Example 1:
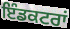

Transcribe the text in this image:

ਇੰਡਕਟਰਾਂ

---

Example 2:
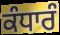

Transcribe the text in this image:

ਕੰਧਾਰੰ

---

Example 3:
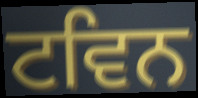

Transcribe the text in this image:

ਟਵਿਨ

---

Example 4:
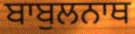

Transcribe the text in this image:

ਬਾਬੁਲਨਾਥ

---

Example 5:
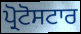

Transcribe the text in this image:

ਪ੍ਰੋਟੋਸਟਾਰ